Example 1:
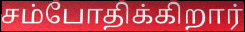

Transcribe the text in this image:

சம்போதிக்கிறார்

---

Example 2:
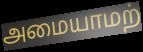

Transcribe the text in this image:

அமையாமற்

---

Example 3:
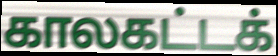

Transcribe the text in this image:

காலகட்டக்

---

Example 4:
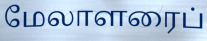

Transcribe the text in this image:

மேலாளரைப்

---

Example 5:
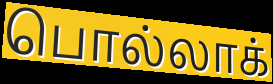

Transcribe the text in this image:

பொல்லாக்